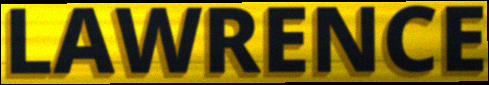
LAWRENCE